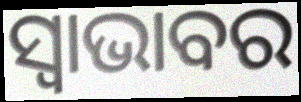
ସ୍ୱାଭାବର